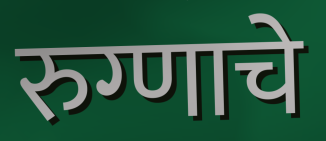
रुग्णाचे